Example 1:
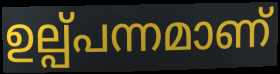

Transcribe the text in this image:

ഉല്പ്പന്നമാണ്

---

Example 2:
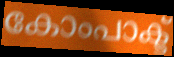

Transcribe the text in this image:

കോംപാക്ട്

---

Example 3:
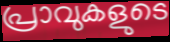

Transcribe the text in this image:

പ്രാവുകളുടെ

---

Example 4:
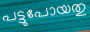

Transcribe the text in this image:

പട്ടുപോയതു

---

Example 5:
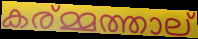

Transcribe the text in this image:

കര്മ്മത്താല്